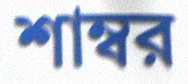
শাম্বর